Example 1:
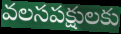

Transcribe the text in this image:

వలసపక్షులకు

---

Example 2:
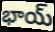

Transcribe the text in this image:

భాయ్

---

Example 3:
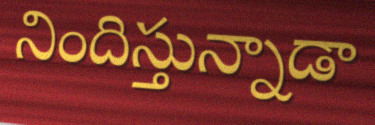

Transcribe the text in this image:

నిందిస్తున్నాడా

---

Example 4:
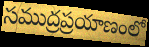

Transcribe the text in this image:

సముద్రప్రయాణంలో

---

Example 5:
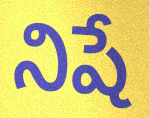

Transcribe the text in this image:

నిషే